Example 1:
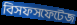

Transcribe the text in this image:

বিসফসফেটেজ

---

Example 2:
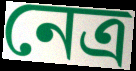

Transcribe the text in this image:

নেত্র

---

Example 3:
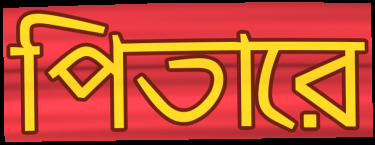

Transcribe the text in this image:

পিতারে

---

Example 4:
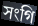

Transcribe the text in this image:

সংগি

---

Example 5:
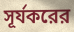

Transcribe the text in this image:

সূর্যকরের